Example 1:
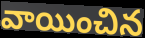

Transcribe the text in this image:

వాయించిన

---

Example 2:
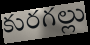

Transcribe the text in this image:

కురగల్లు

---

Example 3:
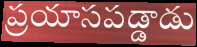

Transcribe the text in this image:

ప్రయాసపడ్డాడు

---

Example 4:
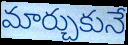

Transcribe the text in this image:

మార్చుకునే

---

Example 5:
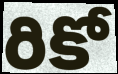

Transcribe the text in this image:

రికో